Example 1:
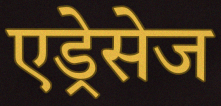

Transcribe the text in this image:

एड्रेसेज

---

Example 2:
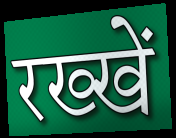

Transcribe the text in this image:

रख्खें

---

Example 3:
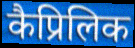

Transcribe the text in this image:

कैप्रिलिक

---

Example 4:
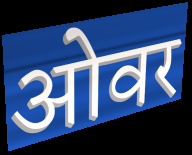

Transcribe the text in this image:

ओवर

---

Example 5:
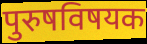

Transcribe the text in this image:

पुरुषविषयक